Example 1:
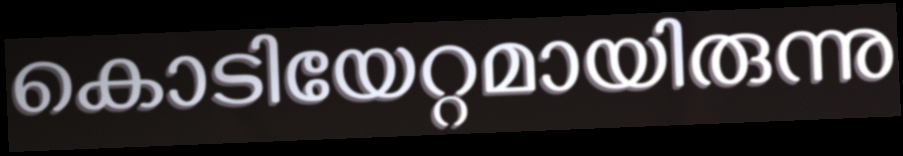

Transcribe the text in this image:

കൊടിയേറ്റമായിരുന്നു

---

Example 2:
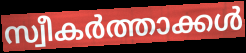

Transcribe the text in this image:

സ്വീകർത്താക്കൾ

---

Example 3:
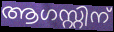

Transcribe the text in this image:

ആഗസ്റ്റിന്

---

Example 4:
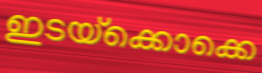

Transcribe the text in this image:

ഇടയ്‌ക്കൊക്കെ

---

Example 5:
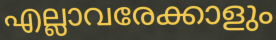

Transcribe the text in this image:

എല്ലാവരേക്കാളും